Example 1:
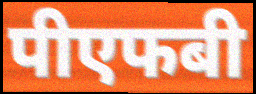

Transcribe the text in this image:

पीएफबी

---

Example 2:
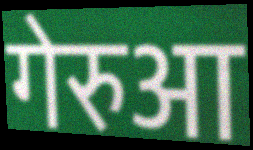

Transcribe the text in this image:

गेरुआ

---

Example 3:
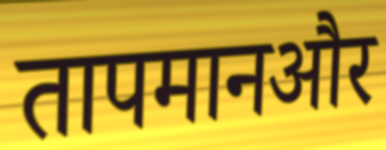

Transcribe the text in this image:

तापमानऔर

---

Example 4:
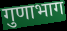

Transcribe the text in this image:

गुणाभाग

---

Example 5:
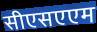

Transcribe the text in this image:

सीएसएएम